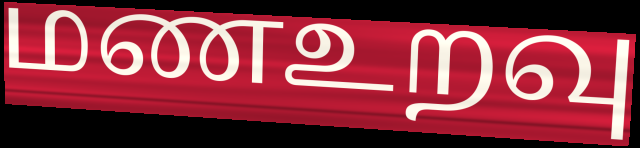
மணஉறவு